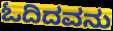
ಓದಿದವನು